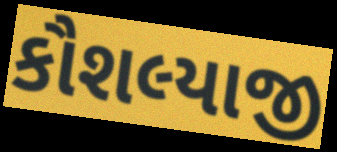
કૌશલ્યાજી